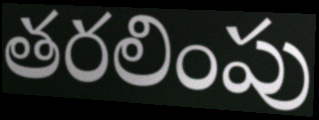
తరలింపు